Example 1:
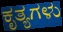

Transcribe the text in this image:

ಕೃತ್ಯಗಳು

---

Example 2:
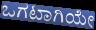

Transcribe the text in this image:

ಒಗಟಾಗಿಯೇ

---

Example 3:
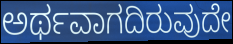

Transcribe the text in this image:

ಅರ್ಥವಾಗದಿರುವುದೇ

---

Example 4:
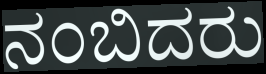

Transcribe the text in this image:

ನಂಬಿದರು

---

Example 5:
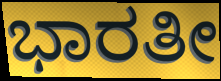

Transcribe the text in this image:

ಭಾರತೀ